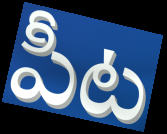
పీట